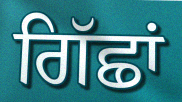
ਗਿੱਛਾਂ